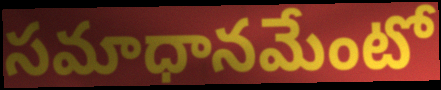
సమాధానమేంటో